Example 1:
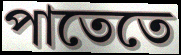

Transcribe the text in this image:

পাতেতে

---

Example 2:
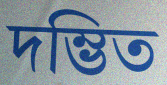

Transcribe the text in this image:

দম্ভিত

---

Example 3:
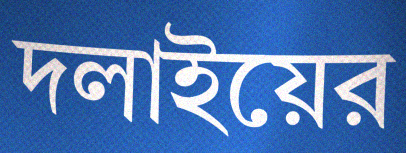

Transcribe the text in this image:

দলাইয়ের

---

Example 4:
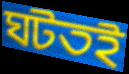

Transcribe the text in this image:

ঘটতই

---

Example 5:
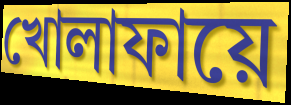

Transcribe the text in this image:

খোলাফায়ে